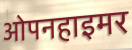
ओपनहाइमर